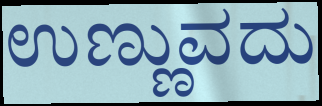
ಉಣ್ಣುವದು